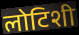
लोटिशी